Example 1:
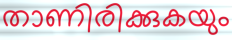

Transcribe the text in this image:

താണിരിക്കുകയും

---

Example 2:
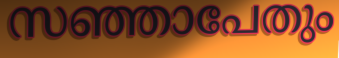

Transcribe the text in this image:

സഞ്ഞാപേതും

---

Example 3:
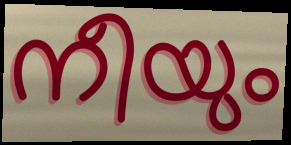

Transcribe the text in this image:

നീയും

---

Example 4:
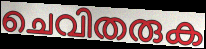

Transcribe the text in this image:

ചെവിതരുക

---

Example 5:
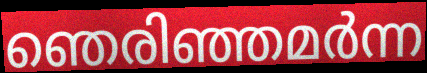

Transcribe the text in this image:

ഞെരിഞ്ഞമർന്ന